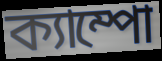
ক্যাম্পো